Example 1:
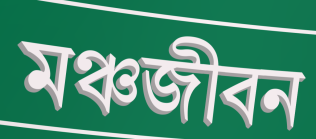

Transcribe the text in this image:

মঞ্চজীবন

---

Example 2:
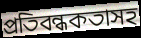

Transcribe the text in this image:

প্রতিবন্ধকতাসহ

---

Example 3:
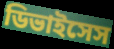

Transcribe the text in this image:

ডিভাইসেস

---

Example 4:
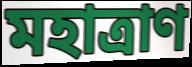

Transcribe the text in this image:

মহাত্রাণ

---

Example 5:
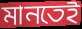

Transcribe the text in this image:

মানতেই